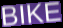
BIKE